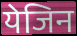
येजिन